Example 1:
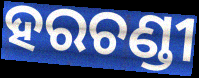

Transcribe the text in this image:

ହରଚଣ୍ଡୀ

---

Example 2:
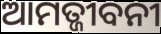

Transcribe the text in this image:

ଆମତ୍ଜୀବନୀ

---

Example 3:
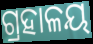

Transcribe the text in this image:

ଗ୍ରହାଳୟ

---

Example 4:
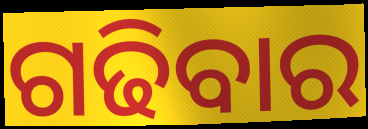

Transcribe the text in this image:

ଗଢିବାର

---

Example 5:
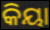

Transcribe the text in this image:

କିୟା